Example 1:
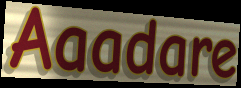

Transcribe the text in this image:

Aaadare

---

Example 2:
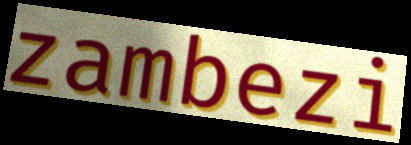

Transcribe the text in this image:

zambezi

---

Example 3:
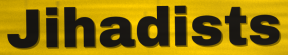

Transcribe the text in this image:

Jihadists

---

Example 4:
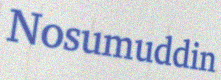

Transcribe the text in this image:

Nosumuddin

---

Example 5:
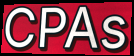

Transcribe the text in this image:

CPAs